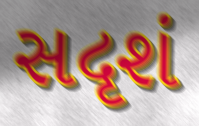
સદૃશં